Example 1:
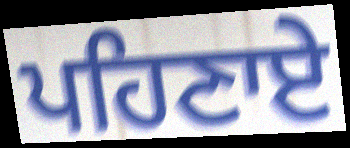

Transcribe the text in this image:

ਪਹਿਣਾਏ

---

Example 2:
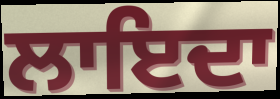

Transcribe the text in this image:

ਲਾਇਦਾ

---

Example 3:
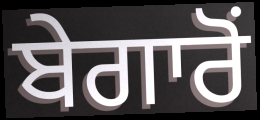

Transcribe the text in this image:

ਬੇਗਾਰੋਂ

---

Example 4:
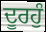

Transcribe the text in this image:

ਦੂਰਹੁੰ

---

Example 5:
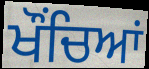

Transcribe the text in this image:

ਖੌਂਚਿਆਂ